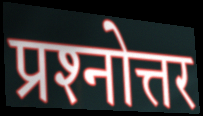
प्रश्‍नोत्तर